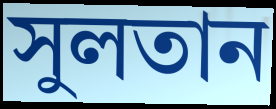
সুলতান